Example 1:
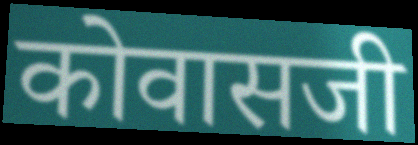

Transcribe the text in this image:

कोवासजी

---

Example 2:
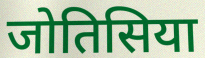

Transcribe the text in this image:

जोतिसिया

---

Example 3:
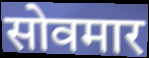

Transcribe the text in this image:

सोवमार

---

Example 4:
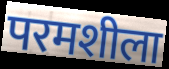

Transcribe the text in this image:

परमशीला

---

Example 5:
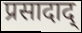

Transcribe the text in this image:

प्रसादाद्